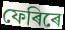
ফেৰিৰে